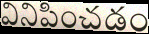
వినిపించడం